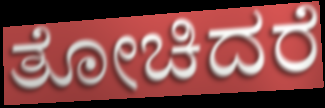
ತೋಚಿದರೆ